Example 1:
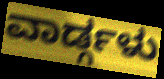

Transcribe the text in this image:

ವಾರ್ಡ್ಗಳು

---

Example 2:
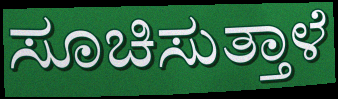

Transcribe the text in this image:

ಸೂಚಿಸುತ್ತಾಳೆ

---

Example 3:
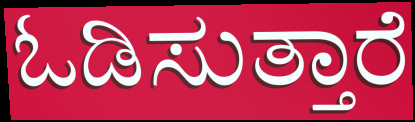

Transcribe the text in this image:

ಓಡಿಸುತ್ತಾರೆ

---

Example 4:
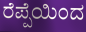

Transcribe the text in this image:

ರೆಪ್ಪೆಯಿಂದ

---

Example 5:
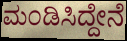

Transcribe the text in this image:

ಮಂಡಿಸಿದ್ದೇನೆ